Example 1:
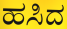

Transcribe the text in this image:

ಹಸಿದ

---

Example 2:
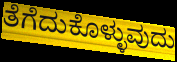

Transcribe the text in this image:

ತೆಗೆದುಕೊಳ್ಳುವುದು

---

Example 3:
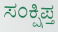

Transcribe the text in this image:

ಸಂಕ್ಷಿಪ್ತ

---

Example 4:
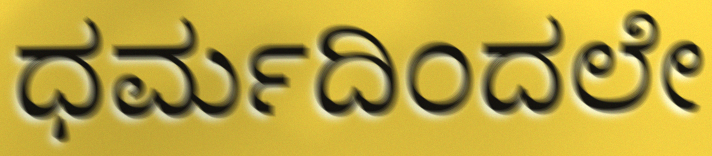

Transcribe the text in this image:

ಧರ್ಮದಿಂದಲೇ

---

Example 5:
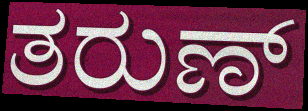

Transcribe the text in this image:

ತರುಣ್